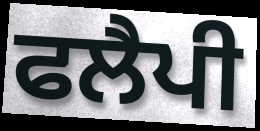
ਫਲੈਪੀ